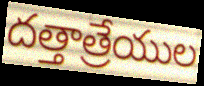
దత్తాత్రేయుల